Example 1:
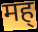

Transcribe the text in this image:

मह्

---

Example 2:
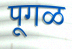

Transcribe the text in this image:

पूगळ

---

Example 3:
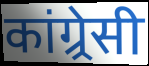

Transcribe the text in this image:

कांग्र्रेसी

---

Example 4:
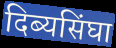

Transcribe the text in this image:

दिब्यसिंघा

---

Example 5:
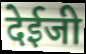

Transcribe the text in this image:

देईजी